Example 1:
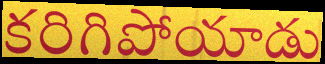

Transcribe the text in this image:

కరిగిపోయాడు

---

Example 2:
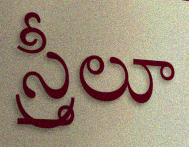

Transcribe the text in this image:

స్ర్తీలూ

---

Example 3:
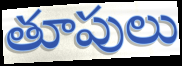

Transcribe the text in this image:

తూపులు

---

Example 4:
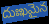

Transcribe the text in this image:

దుఃఖమైన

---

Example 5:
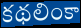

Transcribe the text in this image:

కథలింకా